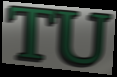
TU